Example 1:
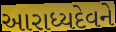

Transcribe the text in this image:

આરાધ્યદેવને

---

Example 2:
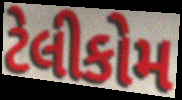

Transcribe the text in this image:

ટેલીકોમ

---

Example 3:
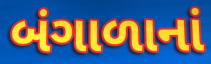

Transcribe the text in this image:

બંગાળાનાં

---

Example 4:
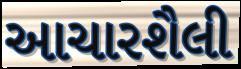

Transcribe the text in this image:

આચારશૈલી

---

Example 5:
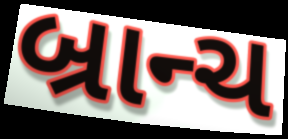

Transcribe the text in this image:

બ્રાન્ચ